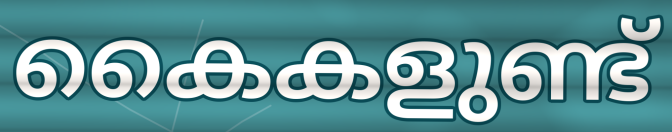
കൈകളുണ്ട്